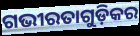
ଗଭୀରତାଗୁଡ଼ିକର